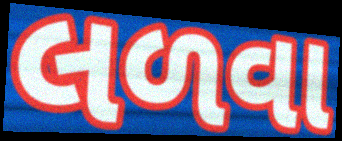
લળવા